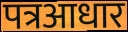
पत्रआधार